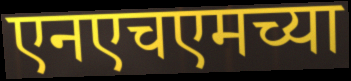
एनएचएमच्या